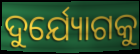
ଦୁର୍ଯ୍ୟୋଗକୁ